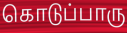
கொடுப்பாரு